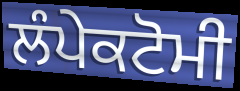
ਲੰਪੇਕਟੋਮੀ